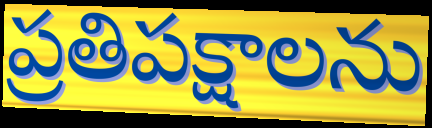
ప్రతిపక్షాలను